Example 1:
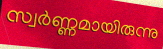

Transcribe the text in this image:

സ്വർണ്ണമായിരുന്നു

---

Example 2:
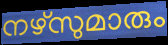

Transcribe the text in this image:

നഴ്സുമാരും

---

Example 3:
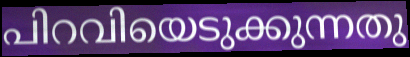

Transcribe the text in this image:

പിറവിയെടുക്കുന്നതു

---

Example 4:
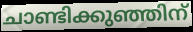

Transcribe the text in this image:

ചാണ്ടിക്കുഞ്ഞിന്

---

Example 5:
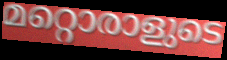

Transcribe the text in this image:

മറ്റൊരാളുടെ